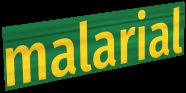
malarial